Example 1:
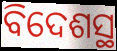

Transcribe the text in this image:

ବିଦେଶସ୍ଥ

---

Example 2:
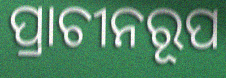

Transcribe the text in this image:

ପ୍ରାଚୀନରୂପ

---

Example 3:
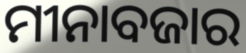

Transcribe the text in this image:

ମୀନାବଜାର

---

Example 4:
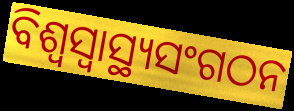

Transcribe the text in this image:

ବିଶ୍ଵସ୍ଵାସ୍ଥ୍ୟସଂଗଠନ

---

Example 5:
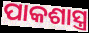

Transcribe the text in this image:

ପାକଶାସ୍ତ୍ର